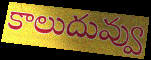
కాలుదువ్వు